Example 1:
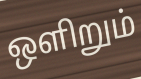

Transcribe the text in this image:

ஒளிறும்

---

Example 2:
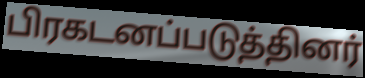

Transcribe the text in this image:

பிரகடனப்படுத்தினர்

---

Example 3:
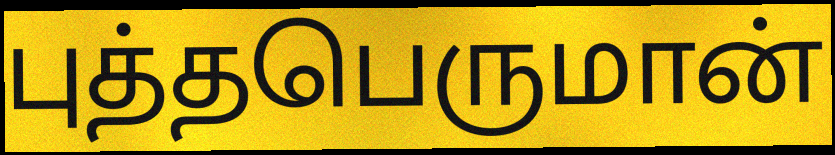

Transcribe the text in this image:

புத்தபெருமான்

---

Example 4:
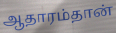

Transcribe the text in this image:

ஆதாரம்தான்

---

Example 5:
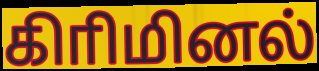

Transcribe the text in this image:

கிரிமினல்